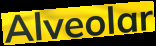
Alveolar